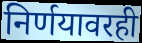
निर्णयावरही